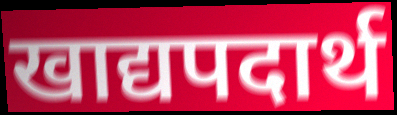
खाद्यपदार्थ